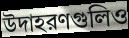
উদাহরণগুলিও